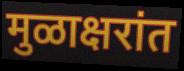
मुळाक्षरांत